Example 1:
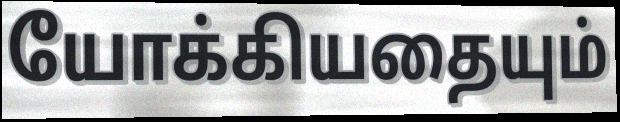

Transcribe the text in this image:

யோக்கியதையும்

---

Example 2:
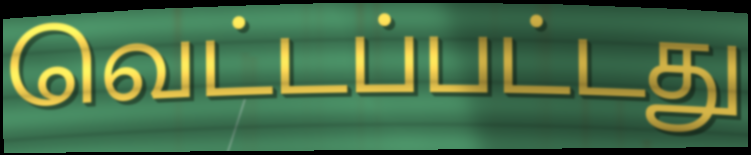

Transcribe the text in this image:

வெட்டப்பட்டது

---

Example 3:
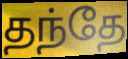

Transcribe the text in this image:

தந்தே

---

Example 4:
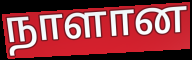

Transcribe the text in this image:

நாளான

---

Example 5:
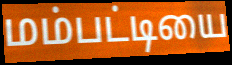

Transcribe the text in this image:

மம்பட்டியை